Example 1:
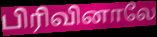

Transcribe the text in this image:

பிரிவினாலே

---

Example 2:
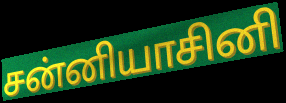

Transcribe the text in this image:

சன்னியாசினி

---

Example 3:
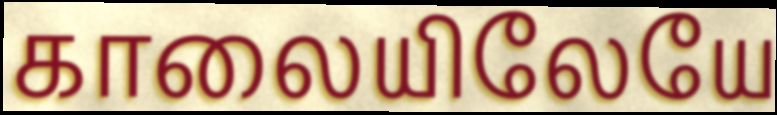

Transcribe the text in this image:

காலையிலேயே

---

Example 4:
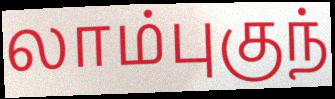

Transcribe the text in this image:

லாம்புகுந்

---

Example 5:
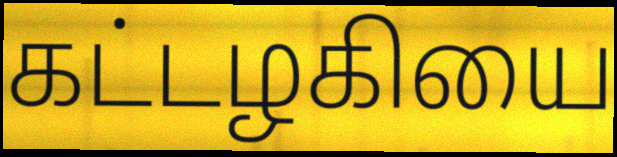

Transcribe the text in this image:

கட்டழகியை